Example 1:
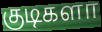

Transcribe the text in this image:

குடிகளா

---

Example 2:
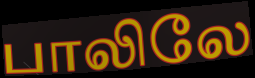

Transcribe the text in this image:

பாலிலே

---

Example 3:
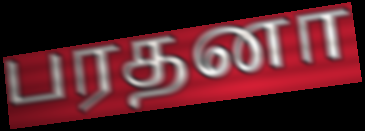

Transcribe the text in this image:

பரதனா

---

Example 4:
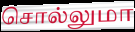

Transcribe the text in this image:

சொல்லுமா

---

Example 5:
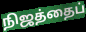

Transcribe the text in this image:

நிஜத்தைப்